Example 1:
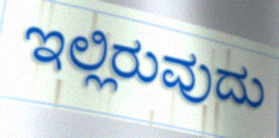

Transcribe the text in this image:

ಇಲ್ಲಿರುವುದು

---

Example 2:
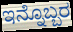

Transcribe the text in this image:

ಇನ್ನೊಬ್ಬರ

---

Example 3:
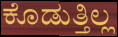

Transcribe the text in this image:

ಕೊಡುತ್ತಿಲ್ಲ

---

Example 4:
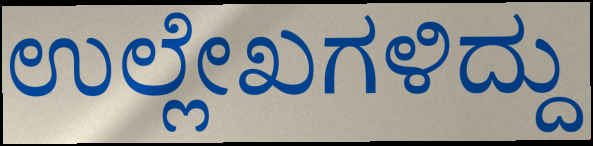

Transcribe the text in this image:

ಉಲ್ಲೇಖಗಳಿದ್ದು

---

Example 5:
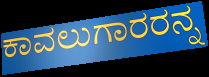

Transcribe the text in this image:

ಕಾವಲುಗಾರರನ್ನ